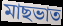
মাছভাত